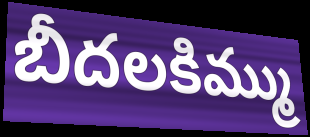
బీదలకిమ్ము